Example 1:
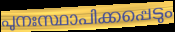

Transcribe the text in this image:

പുനഃസ്ഥാപിക്കപ്പെടും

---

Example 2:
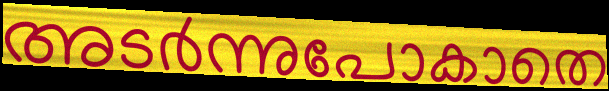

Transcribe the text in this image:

അടർന്നുപോകാതെ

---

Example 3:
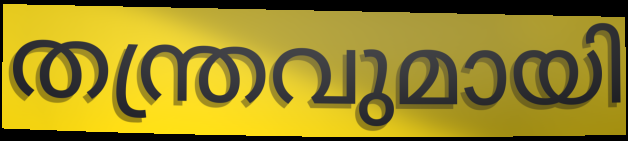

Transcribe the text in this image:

തന്ത്രവുമായി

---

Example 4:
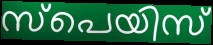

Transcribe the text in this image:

സ്പെയിസ്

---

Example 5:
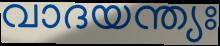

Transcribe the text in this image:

വാദയന്ത്യഃ